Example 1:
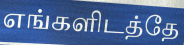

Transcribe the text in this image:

எங்களிடத்தே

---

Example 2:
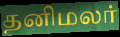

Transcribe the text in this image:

தனிமலர்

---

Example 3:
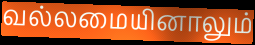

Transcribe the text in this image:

வல்லமையினாலும்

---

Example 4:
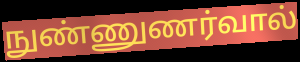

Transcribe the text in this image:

நுண்ணுணர்வால்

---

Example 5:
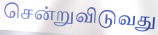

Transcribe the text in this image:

சென்றுவிடுவது